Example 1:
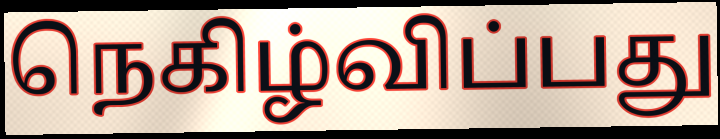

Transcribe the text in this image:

நெகிழ்விப்பது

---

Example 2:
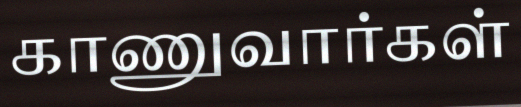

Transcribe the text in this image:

காணுவார்கள்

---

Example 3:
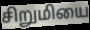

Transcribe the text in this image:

சிறுமியை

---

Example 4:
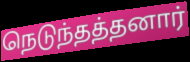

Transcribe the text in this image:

நெடுந்தத்தனார்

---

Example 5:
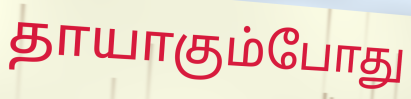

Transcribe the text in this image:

தாயாகும்போது